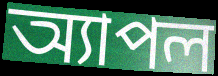
অ্যাপল